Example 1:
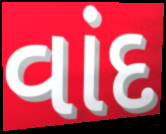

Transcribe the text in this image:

વાંદ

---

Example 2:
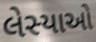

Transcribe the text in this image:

લેસ્યાઓ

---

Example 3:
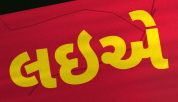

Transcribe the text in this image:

લઇએ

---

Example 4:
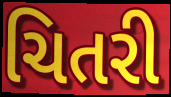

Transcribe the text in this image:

ચિતરી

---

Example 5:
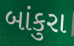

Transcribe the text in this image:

બાંકુરા